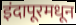
इंदापूरमधून